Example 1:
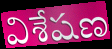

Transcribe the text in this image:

విశేషణ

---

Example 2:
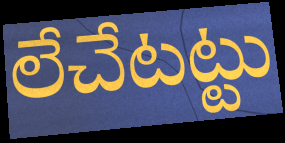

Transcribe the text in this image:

లేచేటట్టు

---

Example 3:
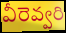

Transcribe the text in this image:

వీరెవ్వరి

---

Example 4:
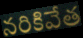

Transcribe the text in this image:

నరికివేత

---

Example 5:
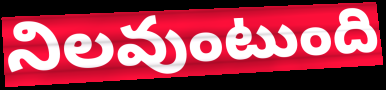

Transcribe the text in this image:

నిలవుంటుంది